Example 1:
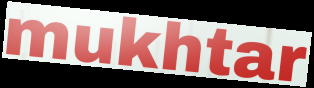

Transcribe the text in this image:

mukhtar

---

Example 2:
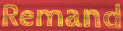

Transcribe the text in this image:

Remand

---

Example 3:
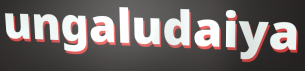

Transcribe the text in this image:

ungaludaiya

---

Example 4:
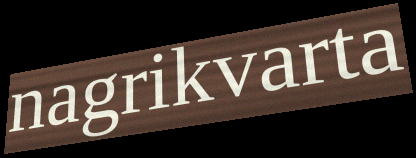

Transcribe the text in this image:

nagrikvarta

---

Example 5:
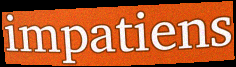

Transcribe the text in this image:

impatiens